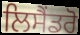
ਲਿਸੈਂਡਰੋ